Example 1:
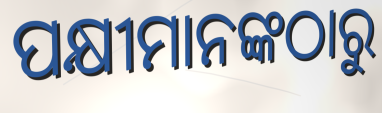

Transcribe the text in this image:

ପକ୍ଷୀମାନଙ୍କଠାରୁ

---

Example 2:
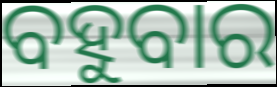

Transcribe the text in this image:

ବହୁବାର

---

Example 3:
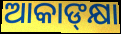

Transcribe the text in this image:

ଆକାଙ୍‌କ୍ଷା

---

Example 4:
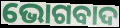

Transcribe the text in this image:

ଭୋଗବାଦ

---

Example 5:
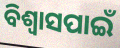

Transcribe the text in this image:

ବିଶ୍ୱାସପାଇଁ